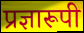
प्रज्ञारूपी